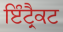
ਇੰਟ੍ਰੈਕਟ